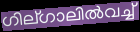
ഗില്ഗാലിൽവച്ച്